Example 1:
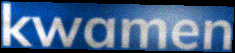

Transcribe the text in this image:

kwamen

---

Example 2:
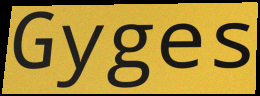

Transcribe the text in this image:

Gyges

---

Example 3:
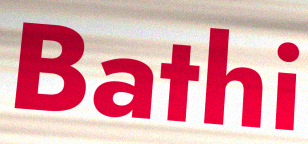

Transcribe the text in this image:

Bathi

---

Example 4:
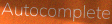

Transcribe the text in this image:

Autocomplete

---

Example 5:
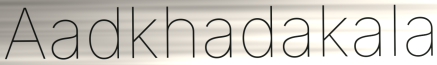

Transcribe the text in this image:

Aadkhadakala